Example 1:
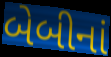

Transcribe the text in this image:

બેબીનાં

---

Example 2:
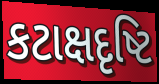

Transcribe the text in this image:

કટાક્ષદૃષ્ટિ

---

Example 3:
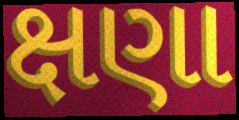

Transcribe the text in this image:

ક્ષણા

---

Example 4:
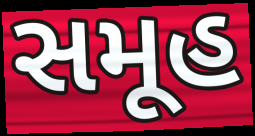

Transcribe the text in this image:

સમૂહ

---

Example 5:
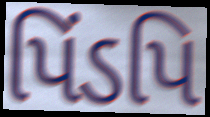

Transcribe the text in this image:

પિંડપિ